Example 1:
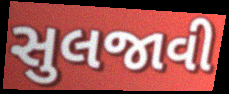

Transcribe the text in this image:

સુલજાવી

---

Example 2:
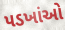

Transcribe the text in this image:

પડખાંઓ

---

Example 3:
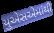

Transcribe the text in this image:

યુએસએમાંથી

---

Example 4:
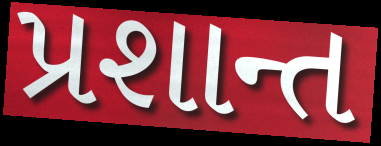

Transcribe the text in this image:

પ્રશાન્ત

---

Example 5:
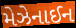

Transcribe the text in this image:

મેઝેનાઈન